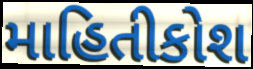
માહિતીકોશ